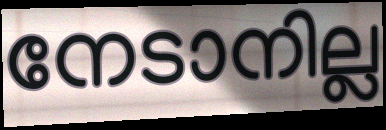
നേടാനില്ല